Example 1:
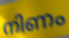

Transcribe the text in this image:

നിണം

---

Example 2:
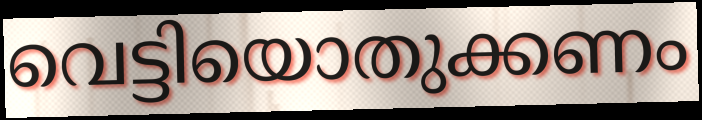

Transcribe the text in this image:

വെട്ടിയൊതുക്കണം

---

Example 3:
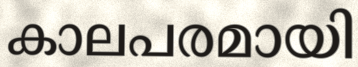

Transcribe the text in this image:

കാലപരമായി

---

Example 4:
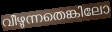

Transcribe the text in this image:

വീഴുന്നതെങ്കിലോ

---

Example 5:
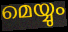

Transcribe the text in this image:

മെയ്യും